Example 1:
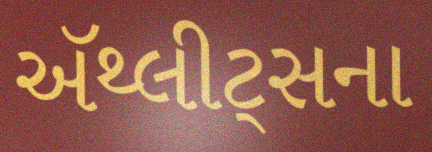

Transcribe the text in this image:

ઍથ્લીટ્સના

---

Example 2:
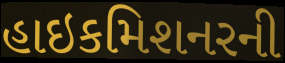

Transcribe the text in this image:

હાઇકમિશનરની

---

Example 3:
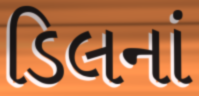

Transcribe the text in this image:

ડિલનાં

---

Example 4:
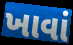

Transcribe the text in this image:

ખાવાં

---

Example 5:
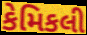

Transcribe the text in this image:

કેમિકલી